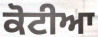
ਕੋਟੀਆ